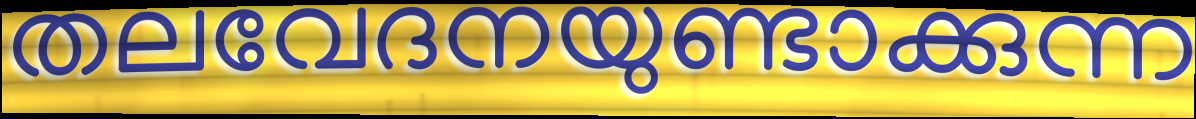
തലവേദനയുണ്ടാക്കുന്ന